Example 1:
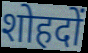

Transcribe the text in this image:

शोहदों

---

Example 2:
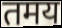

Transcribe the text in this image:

तमय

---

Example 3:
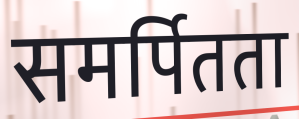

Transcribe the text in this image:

समर्पितता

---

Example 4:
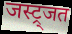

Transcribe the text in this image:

जस्ट्र्जत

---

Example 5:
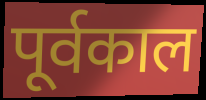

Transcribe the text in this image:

पूर्वकाल